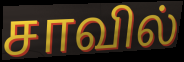
சாவில்